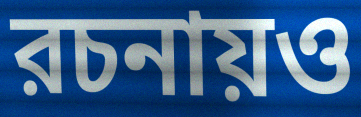
রচনায়ও